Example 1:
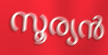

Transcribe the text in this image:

സൂര്യൻ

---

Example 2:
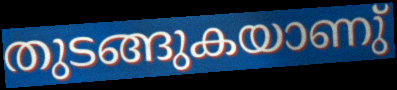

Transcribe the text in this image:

തുടങ്ങുകയാണു്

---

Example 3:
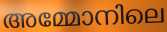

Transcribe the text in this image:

അമ്മോനിലെ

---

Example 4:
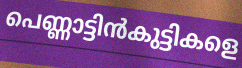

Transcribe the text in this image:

പെണ്ണാട്ടിൻകുട്ടികളെ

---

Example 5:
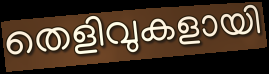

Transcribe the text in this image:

തെളിവുകളായി